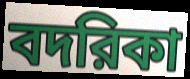
বদরিকা